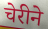
चेरीने